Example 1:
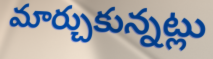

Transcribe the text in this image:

మార్చుకున్నట్లు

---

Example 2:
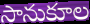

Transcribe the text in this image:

సానుకూల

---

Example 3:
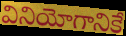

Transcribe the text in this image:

వినియోగానికే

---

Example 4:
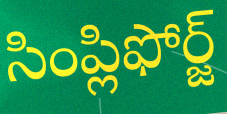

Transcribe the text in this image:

సింప్లిఫోర్జ్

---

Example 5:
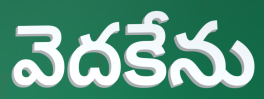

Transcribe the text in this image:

వెదకేను